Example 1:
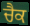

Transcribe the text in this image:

ਚੈਕ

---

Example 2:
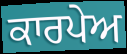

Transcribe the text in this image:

ਕਾਰਪੇਅ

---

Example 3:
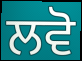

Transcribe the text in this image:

ਲਵੋ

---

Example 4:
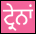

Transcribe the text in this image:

ਟ੍ਰੇਨਾਂ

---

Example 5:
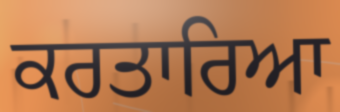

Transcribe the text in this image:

ਕਰਤਾਰਿਆ